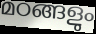
മഠങ്ങളും